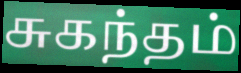
சுகந்தம்